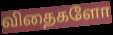
விதைகளோ